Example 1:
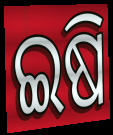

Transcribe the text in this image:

ଇଷି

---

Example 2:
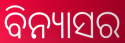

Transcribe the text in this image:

ବିନ୍ୟାସର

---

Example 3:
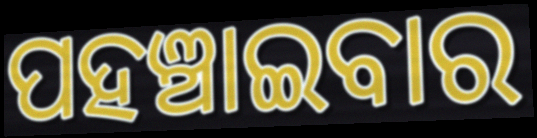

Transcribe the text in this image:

ପହଞ୍ଚାଇବାର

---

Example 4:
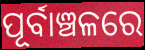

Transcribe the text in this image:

ପୂର୍ବାଞ୍ଚଳରେ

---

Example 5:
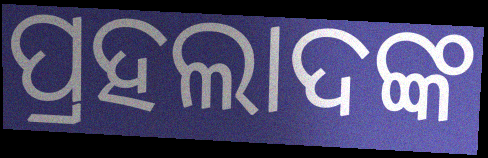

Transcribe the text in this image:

ପ୍ରହଲାଦଙ୍କ